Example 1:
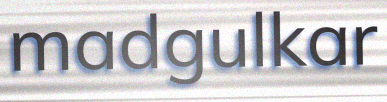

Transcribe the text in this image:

madgulkar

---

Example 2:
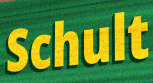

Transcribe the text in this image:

Schult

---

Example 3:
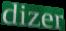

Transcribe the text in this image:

dizer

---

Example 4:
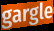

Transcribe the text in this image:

gargle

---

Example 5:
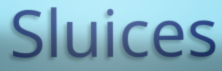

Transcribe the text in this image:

Sluices